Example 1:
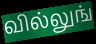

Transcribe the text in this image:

வில்லுங்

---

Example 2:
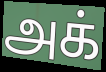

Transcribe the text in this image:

அக்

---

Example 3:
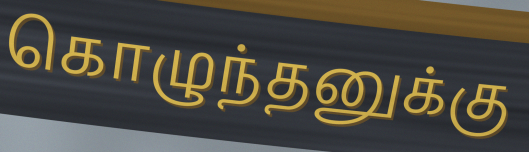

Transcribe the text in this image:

கொழுந்தனுக்கு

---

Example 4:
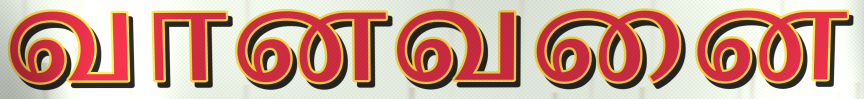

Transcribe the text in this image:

வானவனை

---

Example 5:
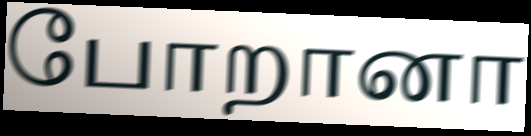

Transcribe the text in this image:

போறானா